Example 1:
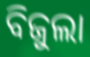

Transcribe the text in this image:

ବିଜୁଲା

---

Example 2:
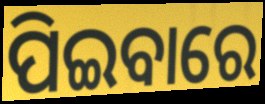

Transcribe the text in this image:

ପିଇବାରେ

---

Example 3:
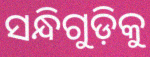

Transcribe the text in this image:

ସନ୍ଧିଗୁଡ଼ିକୁ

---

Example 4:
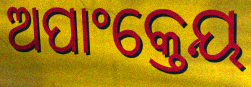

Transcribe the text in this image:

ଅପାଂକ୍ତେୟ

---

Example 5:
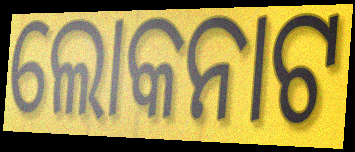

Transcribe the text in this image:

ଲୋକନାଟ